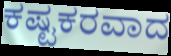
ಕಷ್ಟಕರವಾದ